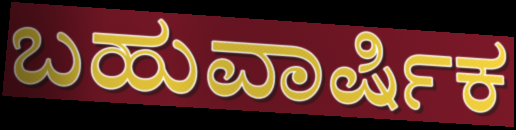
ಬಹುವಾರ್ಷಿಕ